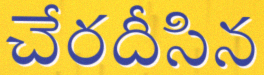
చేరదీసిన